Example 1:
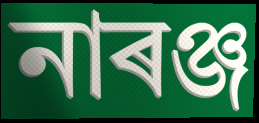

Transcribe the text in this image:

নাৰঞ্জ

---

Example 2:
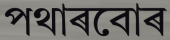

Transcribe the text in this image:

পথাৰবোৰ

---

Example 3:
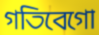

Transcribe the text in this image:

গতিবেগো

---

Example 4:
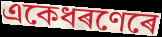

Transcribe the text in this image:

একেধৰণেৰে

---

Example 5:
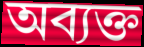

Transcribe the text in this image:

অব্যক্ত